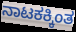
ನಾಟಕಕ್ಕಿಂತ